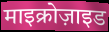
माइक्रोज़ाइड